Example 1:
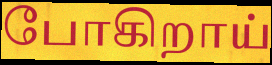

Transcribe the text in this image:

போகிறாய்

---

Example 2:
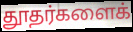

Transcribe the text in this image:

தூதர்களைக்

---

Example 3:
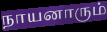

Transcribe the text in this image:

நாயனாரும்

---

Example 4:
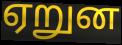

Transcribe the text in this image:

ஏறுன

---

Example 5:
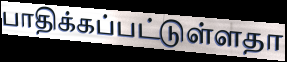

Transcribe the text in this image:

பாதிக்கப்பட்டுள்ளதா